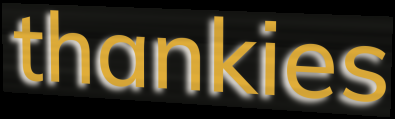
thankies